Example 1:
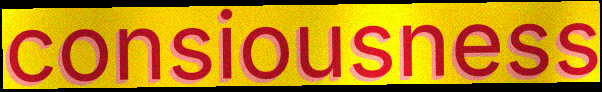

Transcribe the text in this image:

consiousness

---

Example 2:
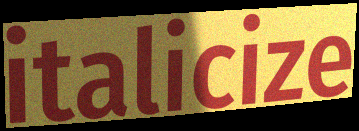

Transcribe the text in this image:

italicize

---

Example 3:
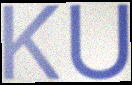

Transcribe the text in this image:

KU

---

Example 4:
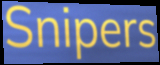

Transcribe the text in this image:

Snipers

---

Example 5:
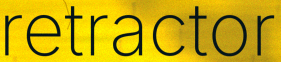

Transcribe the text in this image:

retractor